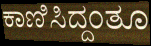
ಕಾಣಿಸಿದ್ದಂತೂ